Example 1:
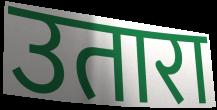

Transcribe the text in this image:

उतारा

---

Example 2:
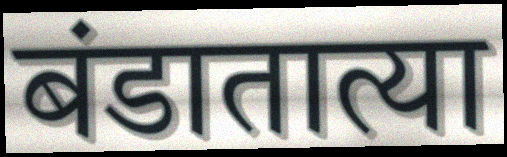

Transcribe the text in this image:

बंडातात्या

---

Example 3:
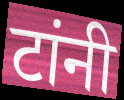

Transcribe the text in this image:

टांनी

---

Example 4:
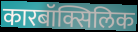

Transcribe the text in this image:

कारबॉक्सिलिक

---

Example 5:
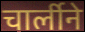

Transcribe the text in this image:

चार्लीने